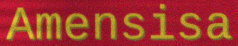
Amensisa